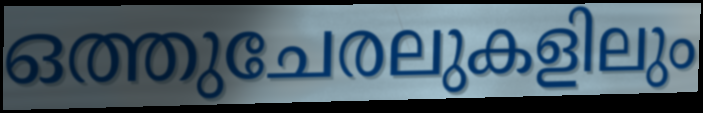
ഒത്തുചേരലുകളിലും